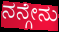
ನನ್ಗೇನು